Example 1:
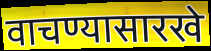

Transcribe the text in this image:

वाचण्यासारखे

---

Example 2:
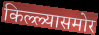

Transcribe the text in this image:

किल्ल्यासमोर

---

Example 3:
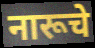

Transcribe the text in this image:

नारूचे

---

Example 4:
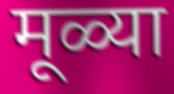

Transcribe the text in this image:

मूळ्या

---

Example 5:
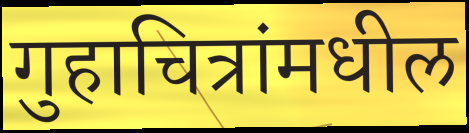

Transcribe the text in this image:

गुहाचित्रांमधील